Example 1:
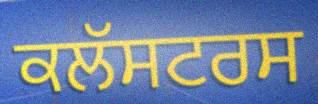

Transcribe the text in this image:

ਕਲੱਸਟਰਸ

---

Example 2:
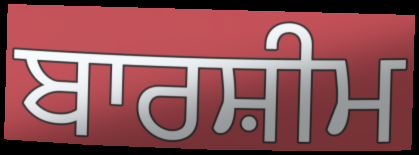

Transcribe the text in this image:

ਬਾਰਸ਼ੀਮ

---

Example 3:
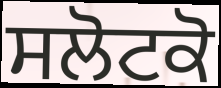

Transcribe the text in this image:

ਸਲੋਟਕੋ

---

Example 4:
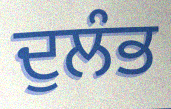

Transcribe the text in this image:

ਦੁਲੰਭ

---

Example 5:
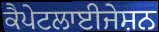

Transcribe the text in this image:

ਕੈਪੇਟਲਾਈਜੇਸ਼ਨ